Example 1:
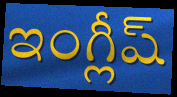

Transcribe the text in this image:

ఇంగ్లీష్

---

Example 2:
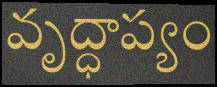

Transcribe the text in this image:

వృద్ధాప్యం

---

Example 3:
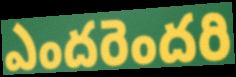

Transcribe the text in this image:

ఎందరెందరి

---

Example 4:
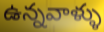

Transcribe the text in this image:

ఉన్నవాళ్ళు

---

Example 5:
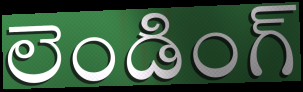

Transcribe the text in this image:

లెండింగ్